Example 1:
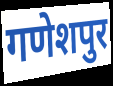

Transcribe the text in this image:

गणेशपुर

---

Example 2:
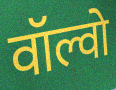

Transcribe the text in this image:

वॉल्‍वो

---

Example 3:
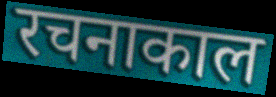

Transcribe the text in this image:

रचनाकाल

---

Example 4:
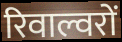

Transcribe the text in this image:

रिवाल्वरों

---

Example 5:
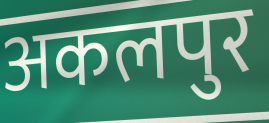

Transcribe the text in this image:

अकलपुर